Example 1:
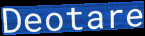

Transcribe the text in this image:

Deotare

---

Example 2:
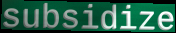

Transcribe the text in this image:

subsidize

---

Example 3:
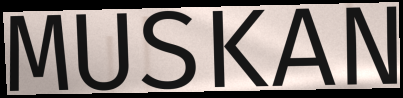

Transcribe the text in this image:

MUSKAN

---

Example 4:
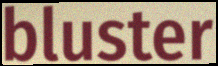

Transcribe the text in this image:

bluster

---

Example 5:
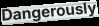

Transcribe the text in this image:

Dangerously